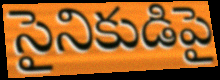
సైనికుడిపై